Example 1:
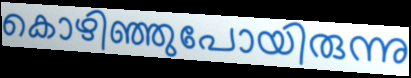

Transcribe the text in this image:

കൊഴിഞ്ഞുപോയിരുന്നു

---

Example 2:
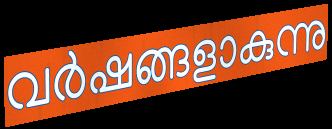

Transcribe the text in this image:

വർഷങ്ങളാകുന്നു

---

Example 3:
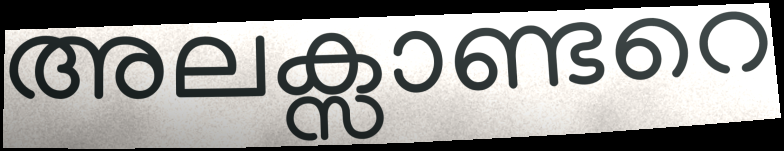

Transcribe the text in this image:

അലക്സാണ്ടറെ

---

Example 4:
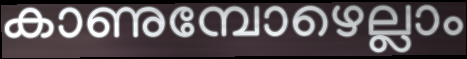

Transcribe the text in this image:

കാണുമ്പോഴെല്ലാം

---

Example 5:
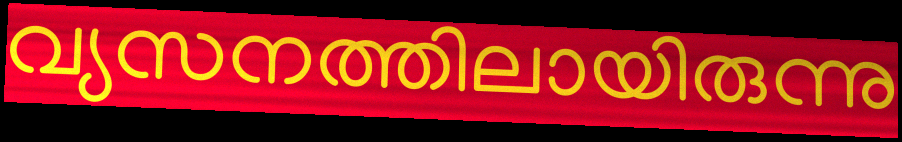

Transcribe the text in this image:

വ്യസനത്തിലായിരുന്നു